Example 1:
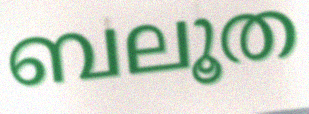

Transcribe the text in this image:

ബലൂത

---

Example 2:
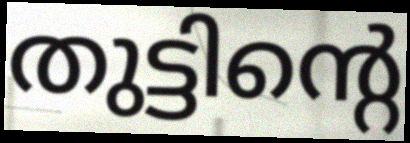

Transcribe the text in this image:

തുട്ടിന്റെ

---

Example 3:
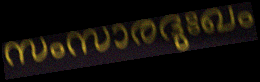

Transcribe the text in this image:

സംസാരദുഃഖം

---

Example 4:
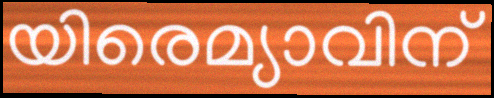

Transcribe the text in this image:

യിരെമ്യാവിന്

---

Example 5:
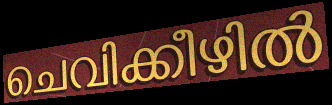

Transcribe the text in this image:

ചെവിക്കീഴിൽ